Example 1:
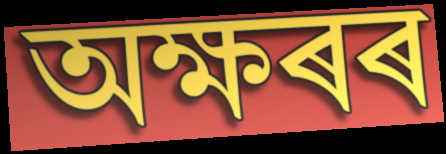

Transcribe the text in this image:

অক্ষৰৰ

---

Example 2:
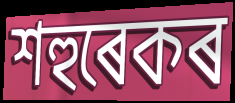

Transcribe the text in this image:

শহুৰেকৰ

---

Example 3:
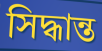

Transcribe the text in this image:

সিদ্ধান্ত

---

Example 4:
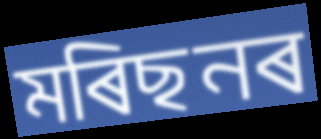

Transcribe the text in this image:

মৰিছনৰ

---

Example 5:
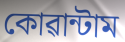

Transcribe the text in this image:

কোৱান্টাম